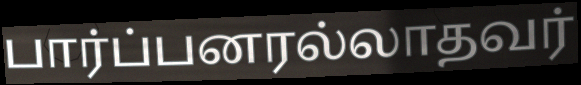
பார்ப்பனரல்லாதவர்